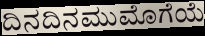
ದಿನದಿನಮುಮೊಗೆಯೆ